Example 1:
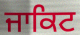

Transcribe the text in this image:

ਜਾਕਿਟ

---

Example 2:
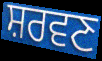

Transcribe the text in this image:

ਸ਼ਰਵਣ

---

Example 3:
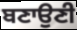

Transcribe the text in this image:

ਬਣਾਉਣੀ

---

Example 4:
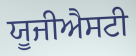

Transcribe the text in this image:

ਯੂਜੀਐਸਟੀ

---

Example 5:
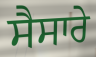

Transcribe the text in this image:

ਸੈਸਾਰੇ